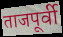
ताजपूर्वी